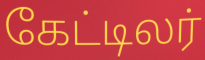
கேட்டிலர்